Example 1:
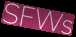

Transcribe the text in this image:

SFWs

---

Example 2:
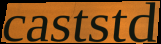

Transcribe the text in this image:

caststd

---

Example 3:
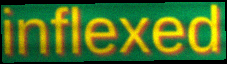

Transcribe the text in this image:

inflexed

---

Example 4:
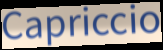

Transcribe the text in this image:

Capriccio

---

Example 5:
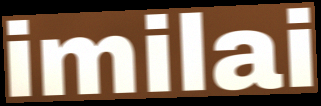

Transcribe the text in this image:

imilai